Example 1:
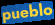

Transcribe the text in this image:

pueblo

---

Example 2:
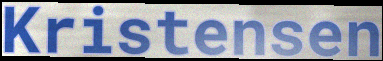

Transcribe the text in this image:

Kristensen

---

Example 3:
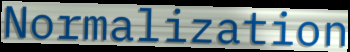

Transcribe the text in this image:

Normalization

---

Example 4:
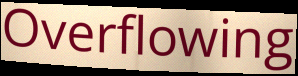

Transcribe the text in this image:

Overflowing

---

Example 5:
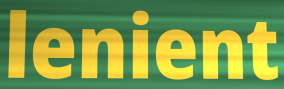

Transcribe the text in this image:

lenient